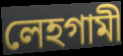
লেহগামী